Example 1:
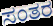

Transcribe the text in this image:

ಸಂತರ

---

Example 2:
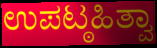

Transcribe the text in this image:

ಉಪಟ್ಠಹಿತ್ವಾ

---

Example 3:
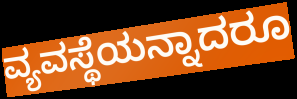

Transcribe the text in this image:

ವ್ಯವಸ್ಥೆಯನ್ನಾದರೂ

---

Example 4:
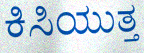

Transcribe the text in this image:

ಕಿಸಿಯುತ್ತ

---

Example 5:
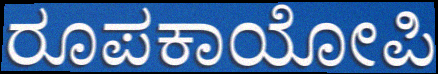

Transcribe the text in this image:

ರೂಪಕಾಯೋಪಿ